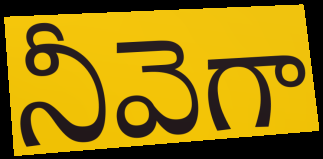
నీవెగా